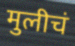
मुलीचं